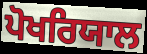
ਪੋਖਰਿਯਾਲ